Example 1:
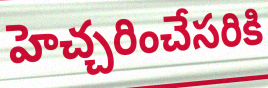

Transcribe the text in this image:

హెచ్చరించేసరికి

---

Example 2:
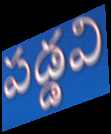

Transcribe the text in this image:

పడ్డవి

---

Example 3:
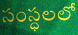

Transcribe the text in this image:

సంస్ధలలో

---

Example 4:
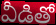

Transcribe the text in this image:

వీడితో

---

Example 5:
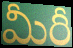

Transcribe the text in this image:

మీరీ